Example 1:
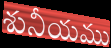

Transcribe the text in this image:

శునీయము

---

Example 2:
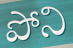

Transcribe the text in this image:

పోని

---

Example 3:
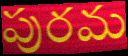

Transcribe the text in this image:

పురమ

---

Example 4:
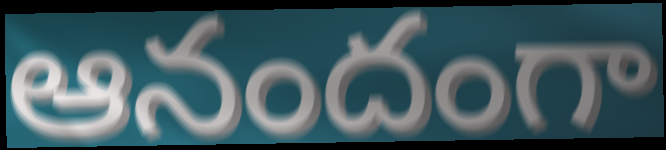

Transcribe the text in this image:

ఆనందంగా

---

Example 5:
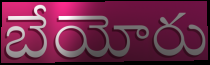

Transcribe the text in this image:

బేయోరు